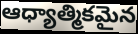
ఆధ్యాత్మికమైన